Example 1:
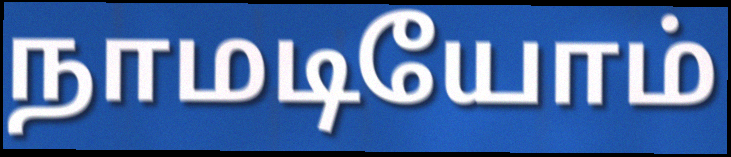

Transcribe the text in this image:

நாமடியோம்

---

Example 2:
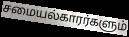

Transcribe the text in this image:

சமையல்காரர்களும்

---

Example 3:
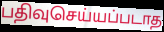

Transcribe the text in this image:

பதிவுசெய்யப்படாத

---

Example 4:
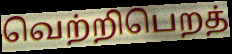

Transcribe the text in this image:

வெற்றிபெறத்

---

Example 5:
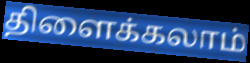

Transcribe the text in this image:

திளைக்கலாம்